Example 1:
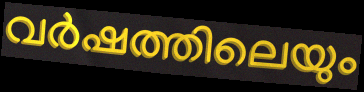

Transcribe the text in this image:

വർഷത്തിലെയും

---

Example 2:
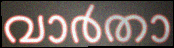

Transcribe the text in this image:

വാർതാ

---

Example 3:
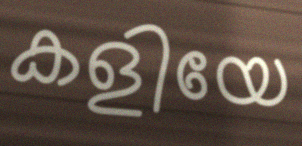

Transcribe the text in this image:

കളിയേ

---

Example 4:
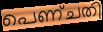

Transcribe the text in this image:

പെണ്ചതി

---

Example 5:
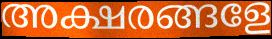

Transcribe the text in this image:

അക്ഷരങ്ങളേ